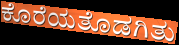
ಕೊರೆಯತೊಡಗಿತು